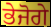
ਭੇਜੋਗੇ